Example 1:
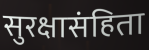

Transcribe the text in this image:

सुरक्षासंहिता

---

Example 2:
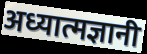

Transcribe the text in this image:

अध्यात्मज्ञानी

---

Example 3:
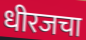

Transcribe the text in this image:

धीरजचा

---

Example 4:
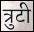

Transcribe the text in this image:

त्रुटी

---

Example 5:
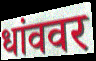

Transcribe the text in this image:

धांववर